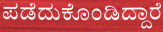
ಪಡೆದುಕೊಂಡಿದ್ದಾರೆ